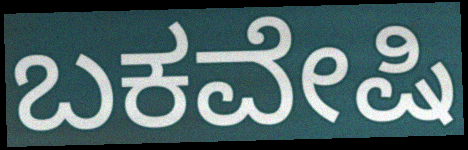
ಬಕವೇಷಿ